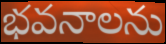
భవనాలను